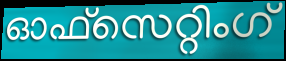
ഓഫ്സെറ്റിംഗ്